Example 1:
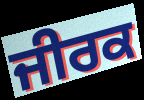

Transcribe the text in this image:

ਜੀਰਕ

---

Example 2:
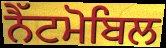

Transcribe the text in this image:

ਨੈੱਟਮੋਬਿਲ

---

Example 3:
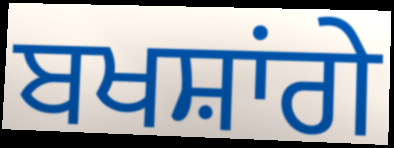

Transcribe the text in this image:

ਬਖਸ਼ਾਂਗੇ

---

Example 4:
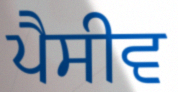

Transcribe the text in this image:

ਪੈਸੀਵ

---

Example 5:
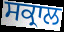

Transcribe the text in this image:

ਸਕ੍ਰਾਲ